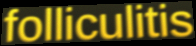
folliculitis